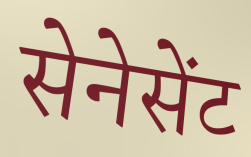
सेनेसेंट